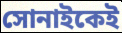
সোনাইকেই